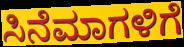
ಸಿನೆಮಾಗಳಿಗೆ